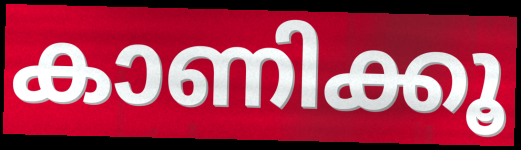
കാണിക്കൂ